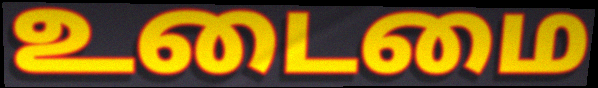
உடைமை